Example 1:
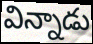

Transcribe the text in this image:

విన్నాడు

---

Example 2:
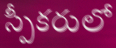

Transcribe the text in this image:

స్పీకరులో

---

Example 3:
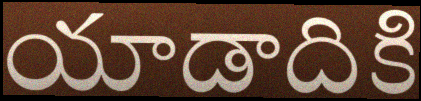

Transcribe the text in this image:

యాడాదికి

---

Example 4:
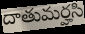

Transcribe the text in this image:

దాతుమర్హసి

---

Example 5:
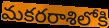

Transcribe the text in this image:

మకరరాశిలోకి